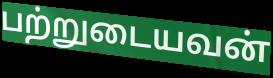
பற்றுடையவன்